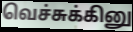
வெச்சுக்கினு